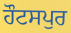
ਹੌਟਸਪੁਰ